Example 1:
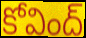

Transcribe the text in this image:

కోవింద్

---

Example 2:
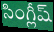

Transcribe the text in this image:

సింగ్లీష్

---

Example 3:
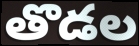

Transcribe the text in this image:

తొడల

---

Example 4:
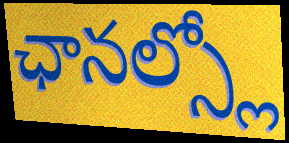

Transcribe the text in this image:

ఛానల్స్లో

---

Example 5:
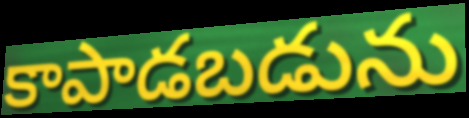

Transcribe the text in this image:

కాపాడబడును